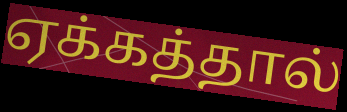
ஏக்கத்தால்